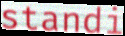
standi